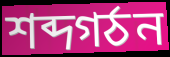
শব্দগঠন